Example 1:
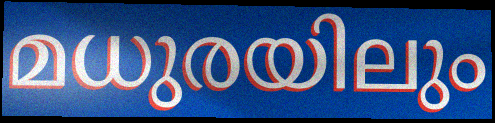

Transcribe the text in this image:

മധുരയിലും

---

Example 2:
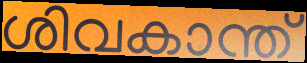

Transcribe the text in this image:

ശിവകാന്ത്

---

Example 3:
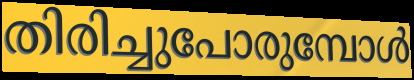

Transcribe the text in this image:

തിരിച്ചുപോരുമ്പോൾ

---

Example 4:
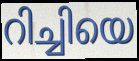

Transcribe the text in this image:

റിച്ചിയെ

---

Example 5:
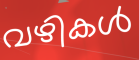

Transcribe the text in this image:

വഴികൾ